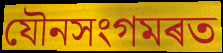
যৌনসংগমৰত